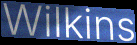
Wilkins